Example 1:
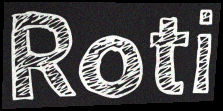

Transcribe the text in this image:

Roti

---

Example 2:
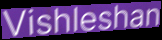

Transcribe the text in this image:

Vishleshan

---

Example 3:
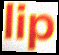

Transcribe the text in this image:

lip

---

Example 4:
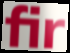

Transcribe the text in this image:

fir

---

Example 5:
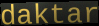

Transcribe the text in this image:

daktar